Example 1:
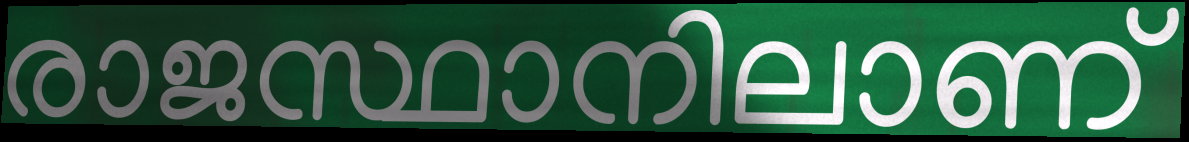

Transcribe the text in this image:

രാജസ്ഥാനിലാണ്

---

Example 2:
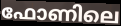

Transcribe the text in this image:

ഫോണിലെ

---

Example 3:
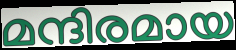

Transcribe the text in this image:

മന്ദിരമായ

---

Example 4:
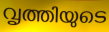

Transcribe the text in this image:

വൃത്തിയുടെ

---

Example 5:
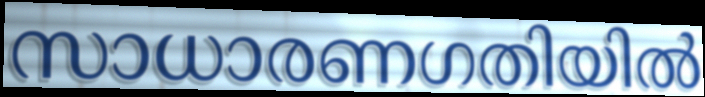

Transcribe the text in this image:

സാധാരണഗതിയിൽ